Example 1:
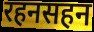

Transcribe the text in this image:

रहनसहन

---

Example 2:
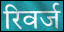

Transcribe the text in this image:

रिवर्ज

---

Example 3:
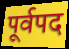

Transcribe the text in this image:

पूर्वपद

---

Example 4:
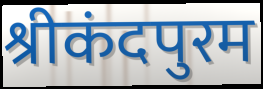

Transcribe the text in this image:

श्रीकंदपुरम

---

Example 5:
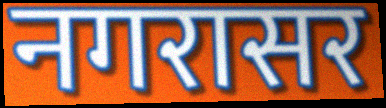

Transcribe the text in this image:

नगरासर